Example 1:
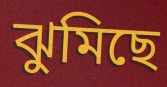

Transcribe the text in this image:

ঝুমিছে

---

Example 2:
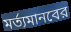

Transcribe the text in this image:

মর্ত্যমানবের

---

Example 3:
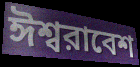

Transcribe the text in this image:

ঈশ্বরাবেশ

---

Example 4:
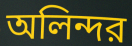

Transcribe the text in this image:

অলিন্দর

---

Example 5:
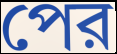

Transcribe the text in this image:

পের